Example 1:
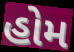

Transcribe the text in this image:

હોમ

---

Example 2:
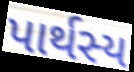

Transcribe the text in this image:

પાર્થસ્ય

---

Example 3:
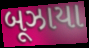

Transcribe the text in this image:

બૂઝાયા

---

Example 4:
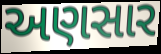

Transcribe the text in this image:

અણસાર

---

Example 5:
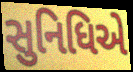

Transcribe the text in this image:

સુનિધિએ